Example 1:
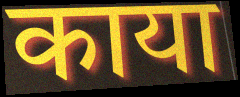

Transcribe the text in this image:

काया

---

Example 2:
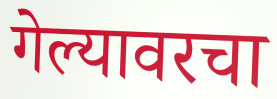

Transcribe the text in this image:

गेल्यावरचा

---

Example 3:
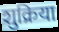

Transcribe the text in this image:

शुक्रिया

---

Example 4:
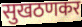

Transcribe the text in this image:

सुखठणकर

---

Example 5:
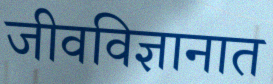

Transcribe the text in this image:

जीवविज्ञानात